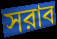
সরাব